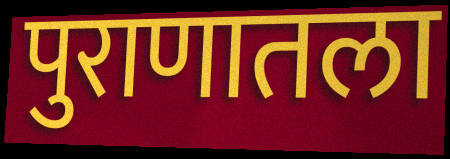
पुराणातला